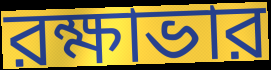
রক্ষাভার